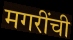
मगरींची